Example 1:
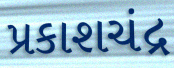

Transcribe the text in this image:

પ્રકાશચંદ્ર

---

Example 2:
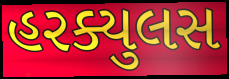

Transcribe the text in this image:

હરક્યુલસ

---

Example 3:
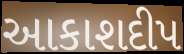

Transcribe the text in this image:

આકાશદીપ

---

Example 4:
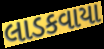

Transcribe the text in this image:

લાડકવાયા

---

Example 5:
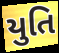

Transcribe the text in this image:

યુતિ